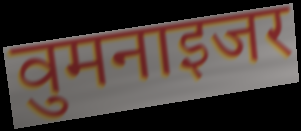
वुमनाइजर